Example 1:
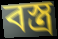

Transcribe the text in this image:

বস্ত্ৰ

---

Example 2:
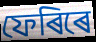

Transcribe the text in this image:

ফেৰিৰে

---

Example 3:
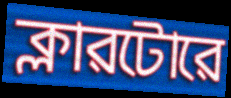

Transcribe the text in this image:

ক্লাৱটোৱে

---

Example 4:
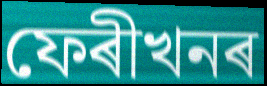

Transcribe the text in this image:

ফেৰীখনৰ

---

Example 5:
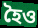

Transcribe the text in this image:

হৈও